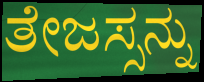
ತೇಜಸ್ಸನ್ನು